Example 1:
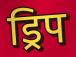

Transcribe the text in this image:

ड्रिप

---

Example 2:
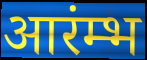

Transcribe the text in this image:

आरंम्भ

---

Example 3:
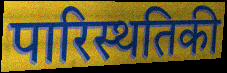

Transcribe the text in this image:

पारिस्थतिकी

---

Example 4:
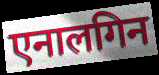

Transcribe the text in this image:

एनालगिन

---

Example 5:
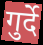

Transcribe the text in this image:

गुर्दे